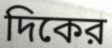
দিকের